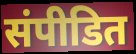
संपीडित